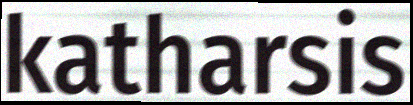
katharsis